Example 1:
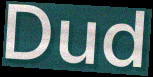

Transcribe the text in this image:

Dud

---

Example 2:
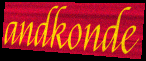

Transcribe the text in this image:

andkonde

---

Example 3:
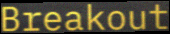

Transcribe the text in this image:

Breakout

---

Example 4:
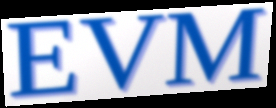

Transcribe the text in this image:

EVM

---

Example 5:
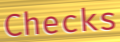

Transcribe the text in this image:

Checks